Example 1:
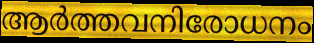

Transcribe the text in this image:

ആർത്തവനിരോധനം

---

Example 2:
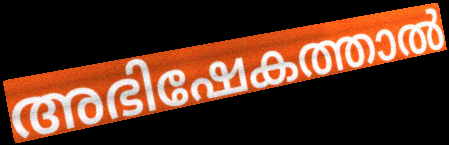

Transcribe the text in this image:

അഭിഷേകത്താൽ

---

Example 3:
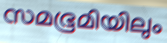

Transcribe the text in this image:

സമഭൂമിയിലും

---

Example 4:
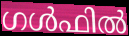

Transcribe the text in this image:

ഗൾഫിൽ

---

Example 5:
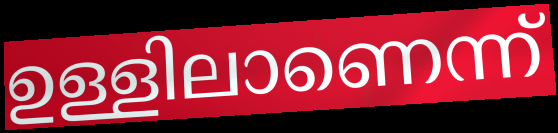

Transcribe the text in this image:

ഉള്ളിലാണെന്ന്